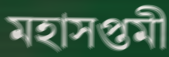
মহাসপ্তমী